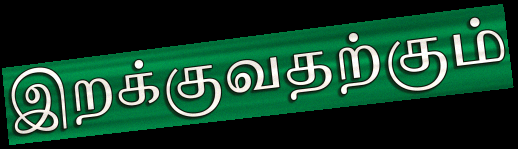
இறக்குவதற்கும்